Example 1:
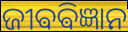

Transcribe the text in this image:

ଜୀଵଵିଜ୍ଞାନ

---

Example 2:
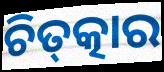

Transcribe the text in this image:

ଚିତ୍‌ତ୍କାର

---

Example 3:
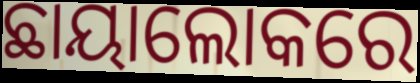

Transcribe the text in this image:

ଛାୟାଲୋକରେ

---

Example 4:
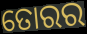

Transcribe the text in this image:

ତୋରର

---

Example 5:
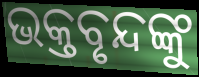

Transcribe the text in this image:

ଭକ୍ତବୃନ୍ଦଙ୍କୁ